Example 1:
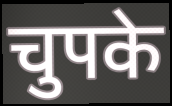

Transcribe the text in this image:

चुपके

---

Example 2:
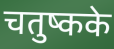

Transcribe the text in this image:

चतुष्कके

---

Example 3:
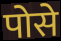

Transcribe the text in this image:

पोसे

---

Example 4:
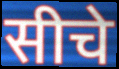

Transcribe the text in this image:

सीचे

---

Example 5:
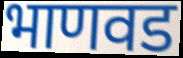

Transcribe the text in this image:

भाणवड